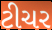
ટીચર